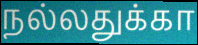
நல்லதுக்கா